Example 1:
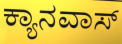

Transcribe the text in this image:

ಕ್ಯಾನವಾಸ್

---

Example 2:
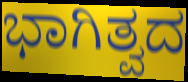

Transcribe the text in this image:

ಭಾಗಿತ್ವದ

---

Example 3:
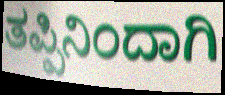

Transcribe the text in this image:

ತಪ್ಪಿನಿಂದಾಗಿ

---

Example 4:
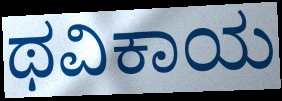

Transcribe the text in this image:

ಥವಿಕಾಯ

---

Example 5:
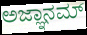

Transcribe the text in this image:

ಅಜ್ಞಾನಮ್